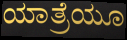
ಯಾತ್ರೆಯೂ